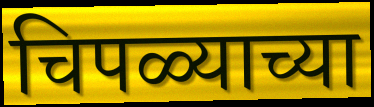
चिपळ्याच्या